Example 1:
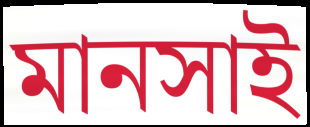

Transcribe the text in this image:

মানসাই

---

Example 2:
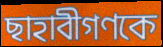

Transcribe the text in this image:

ছাহাবীগণকে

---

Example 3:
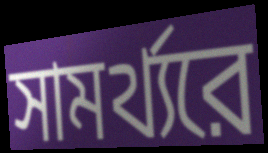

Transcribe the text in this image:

সামর্থ্যরে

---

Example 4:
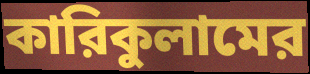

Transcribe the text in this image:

কারিকুলামের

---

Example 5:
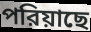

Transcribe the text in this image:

পরিয়াছে